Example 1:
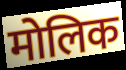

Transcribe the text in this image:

मोलिक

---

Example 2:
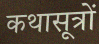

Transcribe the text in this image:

कथासूत्रों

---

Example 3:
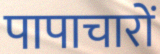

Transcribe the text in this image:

पापाचारों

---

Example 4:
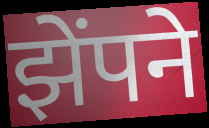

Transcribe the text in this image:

झेंपने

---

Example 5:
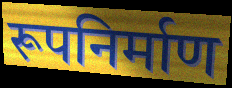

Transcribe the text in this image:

रूपनिर्माण